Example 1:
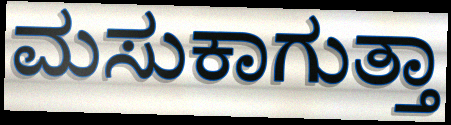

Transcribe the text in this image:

ಮಸುಕಾಗುತ್ತಾ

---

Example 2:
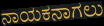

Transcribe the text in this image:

ನಾಯಕನಾಗಲು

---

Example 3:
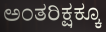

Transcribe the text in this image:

ಅಂತರಿಕ್ಷಕ್ಕೂ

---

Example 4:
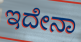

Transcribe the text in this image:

ಇದೇನಾ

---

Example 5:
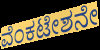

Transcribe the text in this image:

ವೆಂಕಟೇಶನೇ